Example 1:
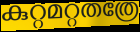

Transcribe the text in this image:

കുറ്റമറ്റതത്രേ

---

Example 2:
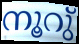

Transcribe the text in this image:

നൂറു്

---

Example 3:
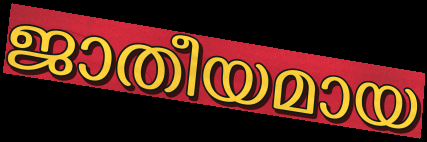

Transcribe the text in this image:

ജാതീയമായ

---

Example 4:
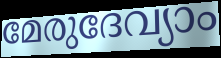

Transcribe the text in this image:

മേരുദേവ്യാം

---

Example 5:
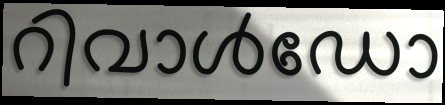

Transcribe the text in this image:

റിവാൾഡോ